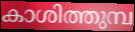
കാശിത്തുമ്പ